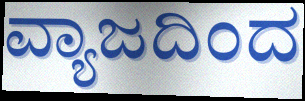
ವ್ಯಾಜದಿಂದ